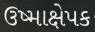
ઉષ્માક્ષેપક